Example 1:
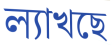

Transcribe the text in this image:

ল্যাখছে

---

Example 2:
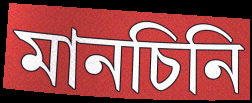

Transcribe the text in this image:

মানচিনি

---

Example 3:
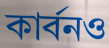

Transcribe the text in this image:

কার্বনও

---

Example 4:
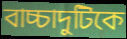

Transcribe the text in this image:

বাচ্চাদুটিকে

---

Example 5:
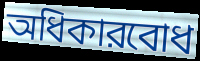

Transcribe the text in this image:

অধিকারবোধ